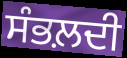
ਸੰਭਲ਼ਦੀ